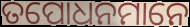
ତପୋଧନମାନେ